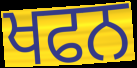
ਖਫਨ